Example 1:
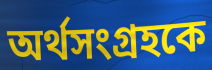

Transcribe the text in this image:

অর্থসংগ্রহকে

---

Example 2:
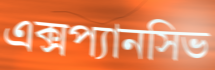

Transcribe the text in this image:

এক্সপ্যানসিভ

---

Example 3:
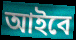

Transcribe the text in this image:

আইবে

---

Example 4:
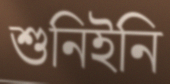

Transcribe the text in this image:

শুনিইনি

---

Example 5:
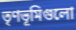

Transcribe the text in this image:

তৃণভূমিগুলো